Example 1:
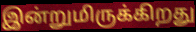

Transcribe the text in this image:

இன்றுமிருக்கிறது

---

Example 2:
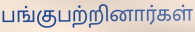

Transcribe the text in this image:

பங்குபற்றினார்கள்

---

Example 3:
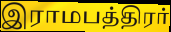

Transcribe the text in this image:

இராமபத்திரர்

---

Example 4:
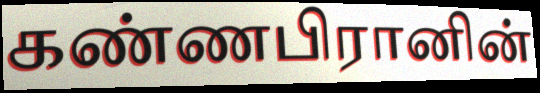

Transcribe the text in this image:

கண்ணபிரானின்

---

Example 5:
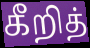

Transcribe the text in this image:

கீறித்